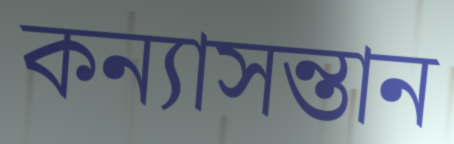
কন্যাসন্তান